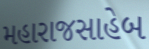
મહારાજસાહેબ